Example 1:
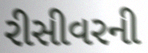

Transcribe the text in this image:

રીસીવરની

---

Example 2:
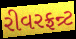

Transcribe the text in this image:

રીવરફ્રન્ર્ટ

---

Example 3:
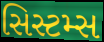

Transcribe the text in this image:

સિસ્ટમ્સ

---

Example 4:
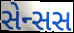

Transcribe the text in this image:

સેન્સસ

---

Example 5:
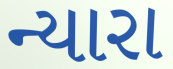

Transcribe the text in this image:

ન્યારા